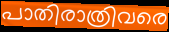
പാതിരാത്രിവരെ